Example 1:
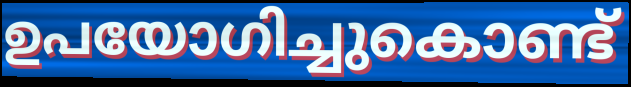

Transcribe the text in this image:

ഉപയോഗിച്ചുകൊണ്ട്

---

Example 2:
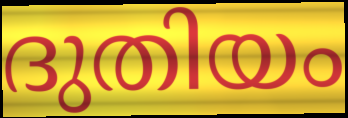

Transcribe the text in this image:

ദുതിയം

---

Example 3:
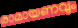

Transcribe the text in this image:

രാമായണവും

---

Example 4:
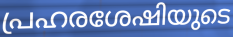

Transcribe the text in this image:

പ്രഹരശേഷിയുടെ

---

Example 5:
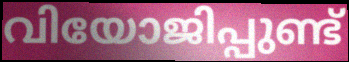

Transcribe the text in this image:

വിയോജിപ്പുണ്ട്